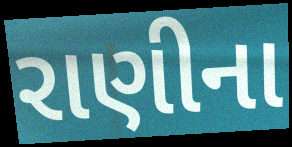
રાણીના